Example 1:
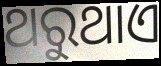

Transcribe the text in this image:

ଥରୁଥାଏ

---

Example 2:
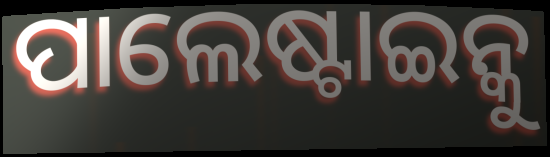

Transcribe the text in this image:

ପାଲେଷ୍ଟାଇନ୍କୁ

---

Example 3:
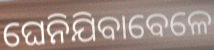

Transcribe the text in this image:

ଘେନିଯିବାବେଳେ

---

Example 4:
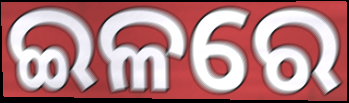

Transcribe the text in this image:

ଇଳରେ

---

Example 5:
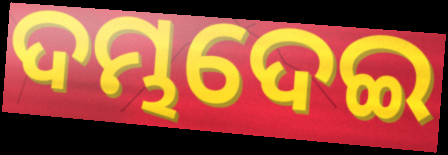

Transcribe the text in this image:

ଦମ୍ଭଦେଇ